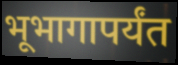
भूभागापर्यंत